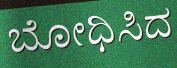
ಬೋಧಿಸಿದ